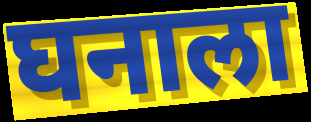
घनाला